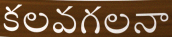
కలవగలనా